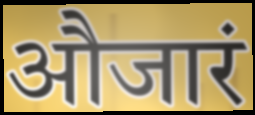
औजारं